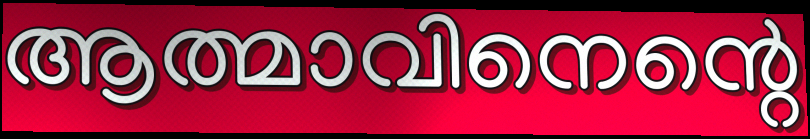
ആത്മാവിനെന്റെ